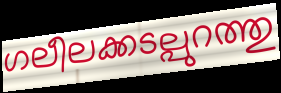
ഗലീലക്കടല്പുറത്തു